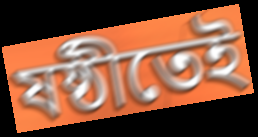
ষষ্ঠীতেই